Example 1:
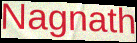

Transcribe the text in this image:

Nagnath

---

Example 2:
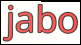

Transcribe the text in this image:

jabo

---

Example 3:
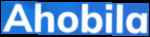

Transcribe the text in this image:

Ahobila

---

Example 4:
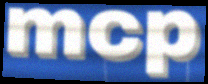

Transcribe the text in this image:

mcp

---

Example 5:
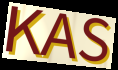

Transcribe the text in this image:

KAS